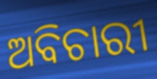
ଅବିଚାରୀ